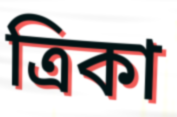
ত্রিকা